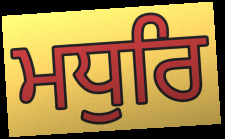
ਮਧੁਰਿ